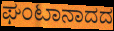
ಘಂಟಾನಾದದ